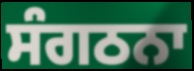
ਸੰਗਠਨਾ